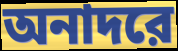
অনাদরে